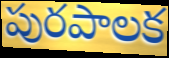
పురపాలక